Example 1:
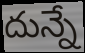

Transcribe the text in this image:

దున్నే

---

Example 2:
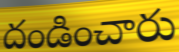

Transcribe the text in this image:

దండించారు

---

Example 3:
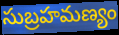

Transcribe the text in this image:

సుబ్రహమణ్యం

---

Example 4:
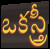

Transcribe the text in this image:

ఒకస్త్రీ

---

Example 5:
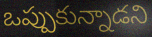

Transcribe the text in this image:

ఒప్పుకున్నాడని